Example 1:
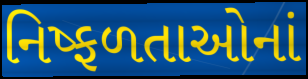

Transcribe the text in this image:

નિષ્ફળતાઓનાં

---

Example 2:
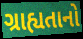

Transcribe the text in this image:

ગ્રાહ્યતાનો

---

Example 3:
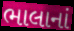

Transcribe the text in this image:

ભાલાનાં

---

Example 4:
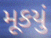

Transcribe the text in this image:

મૂકયું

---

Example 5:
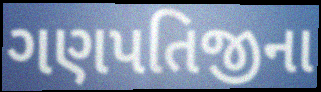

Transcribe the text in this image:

ગણપતિજીના